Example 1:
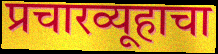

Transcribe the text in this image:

प्रचारव्यूहाचा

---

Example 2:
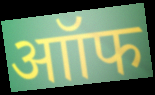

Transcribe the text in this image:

आॉफ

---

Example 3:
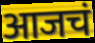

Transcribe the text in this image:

आजचं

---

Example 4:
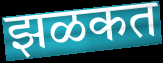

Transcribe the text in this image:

झळकत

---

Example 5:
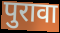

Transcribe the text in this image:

पुरावा